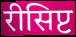
रीसिप्ट